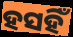
ହସହିଁ